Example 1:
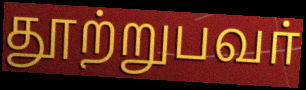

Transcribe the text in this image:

தூற்றுபவர்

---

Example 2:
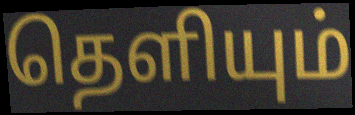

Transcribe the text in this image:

தெளியும்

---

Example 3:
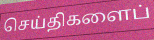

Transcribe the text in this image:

செய்திகளைப்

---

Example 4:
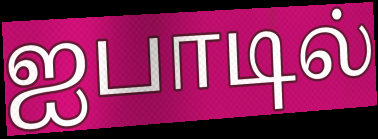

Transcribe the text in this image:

ஐபாடில்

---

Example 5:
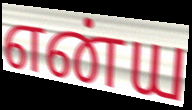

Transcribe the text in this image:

என்ய